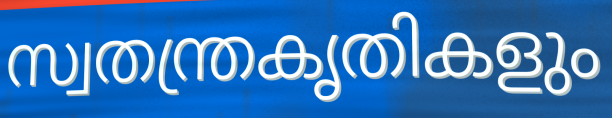
സ്വതന്ത്രകൃതികളും